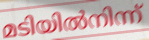
മടിയിൽനിന്ന്